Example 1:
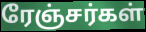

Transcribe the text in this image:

ரேஞ்சர்கள்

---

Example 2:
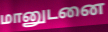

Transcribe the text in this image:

மானுடனை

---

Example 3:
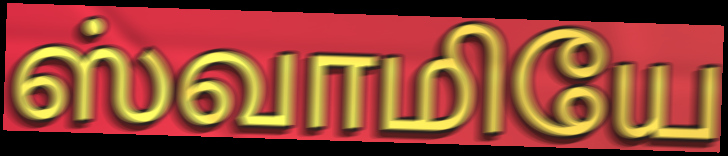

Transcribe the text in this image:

ஸ்வாமியே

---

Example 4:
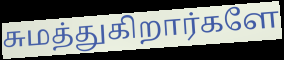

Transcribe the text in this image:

சுமத்துகிறார்களே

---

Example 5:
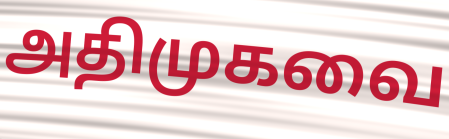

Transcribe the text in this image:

அதிமுகவை